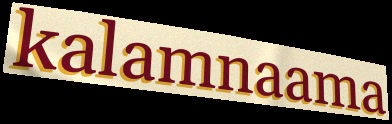
kalamnaama